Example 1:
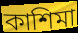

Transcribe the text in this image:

কাশিমা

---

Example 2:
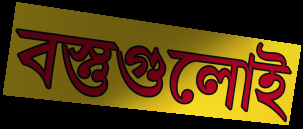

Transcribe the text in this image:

বস্তুগুলোই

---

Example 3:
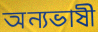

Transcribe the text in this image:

অন্যভাষী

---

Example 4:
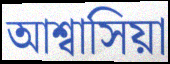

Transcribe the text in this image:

আশ্বাসিয়া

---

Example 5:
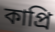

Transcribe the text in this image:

কাপ্রি